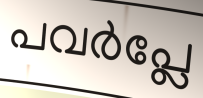
പവർപ്ലേ